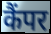
कैंपर